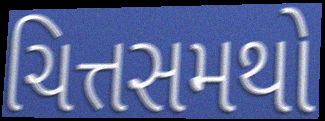
ચિત્તસમથો